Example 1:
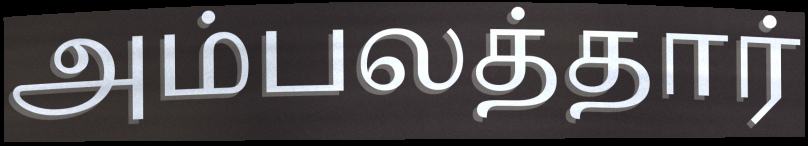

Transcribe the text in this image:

அம்பலத்தார்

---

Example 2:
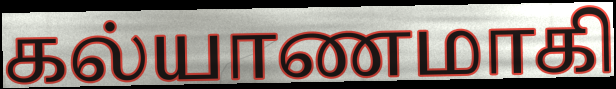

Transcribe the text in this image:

கல்யாணமாகி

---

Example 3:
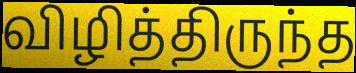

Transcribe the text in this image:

விழித்திருந்த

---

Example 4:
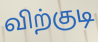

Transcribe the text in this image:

விற்குடி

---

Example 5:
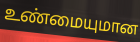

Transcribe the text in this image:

உண்மையுமான